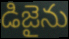
డిజైను